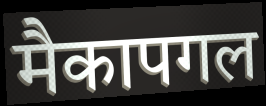
मैकापगल